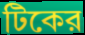
টিকের